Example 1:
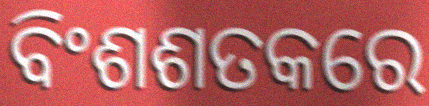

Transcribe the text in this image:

ବିଂଶଶତକରେ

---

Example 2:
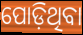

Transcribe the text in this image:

ପୋଡ଼ିଥିବା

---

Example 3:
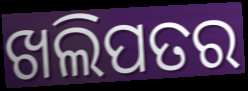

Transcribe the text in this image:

ଖଲିପତର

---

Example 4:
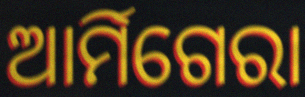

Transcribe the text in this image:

ଆର୍ମିଗେରା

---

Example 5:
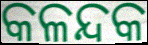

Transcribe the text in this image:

କଳନ୍ଦକ